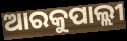
ଆରକୁପାଲ୍ଲୀ